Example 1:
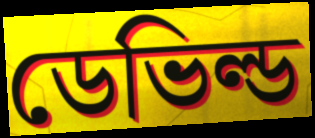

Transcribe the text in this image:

ডেভিল্ড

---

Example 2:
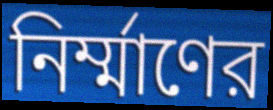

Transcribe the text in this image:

নির্ম্মাণের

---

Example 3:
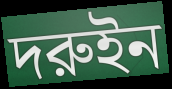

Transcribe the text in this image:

দরুইন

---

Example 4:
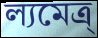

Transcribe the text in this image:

ল্যমেত্র্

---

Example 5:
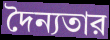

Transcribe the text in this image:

দৈন্যতার